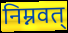
निम्नवत्